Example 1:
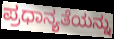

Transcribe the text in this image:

ಪ್ರಧಾನ್ಯತೆಯನ್ನು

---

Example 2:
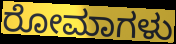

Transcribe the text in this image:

ರೋಮಾಗಳು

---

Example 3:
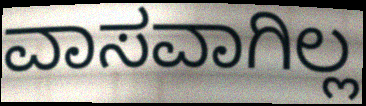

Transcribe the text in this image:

ವಾಸವಾಗಿಲ್ಲ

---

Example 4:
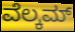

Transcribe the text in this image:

ವೆಲ್ಕಮ್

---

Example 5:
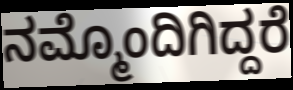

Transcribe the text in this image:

ನಮ್ಮೊಂದಿಗಿದ್ದರೆ